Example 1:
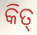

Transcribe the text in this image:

କିତ୍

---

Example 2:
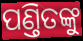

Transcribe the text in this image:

ପଣ୍ତିତଙ୍କୁ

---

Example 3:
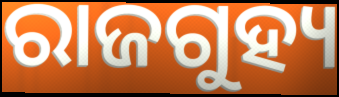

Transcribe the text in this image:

ରାଜଗୁହ୍ୟ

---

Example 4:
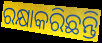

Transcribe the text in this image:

ରକ୍ଷାକରିଛନ୍ତି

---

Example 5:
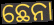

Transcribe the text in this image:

ଛେନା